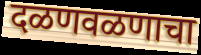
दळणवळणाचा